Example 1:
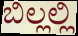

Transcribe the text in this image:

ಬಿಲ್ಲಲ್ಲಿ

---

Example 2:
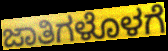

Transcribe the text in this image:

ಜಾತಿಗಳೊಳಗೆ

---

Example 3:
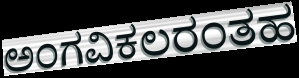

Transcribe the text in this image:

ಅಂಗವಿಕಲರಂತಹ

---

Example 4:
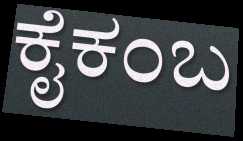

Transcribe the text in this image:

ಕೈಕಂಬ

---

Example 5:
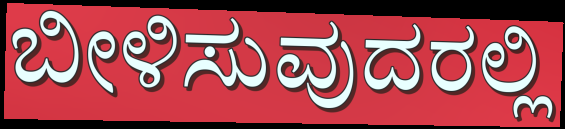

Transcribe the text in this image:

ಬೀಳಿಸುವುದರಲ್ಲಿ